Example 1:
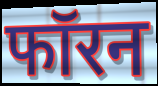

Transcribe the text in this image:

फॉरन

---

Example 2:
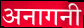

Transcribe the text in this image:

अनागनी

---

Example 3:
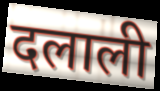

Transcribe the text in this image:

दलाली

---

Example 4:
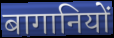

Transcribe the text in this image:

बागानियों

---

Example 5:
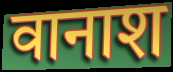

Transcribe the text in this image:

वानाश